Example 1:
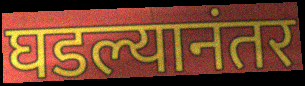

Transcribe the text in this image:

घडल्यानंतर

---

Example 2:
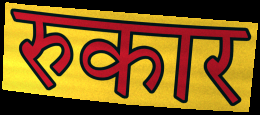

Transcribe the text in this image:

रुकार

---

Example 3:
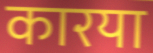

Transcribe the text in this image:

कारया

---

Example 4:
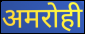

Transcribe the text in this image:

अमरोही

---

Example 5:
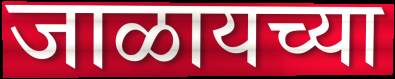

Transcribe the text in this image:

जाळायच्या